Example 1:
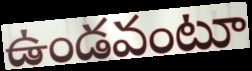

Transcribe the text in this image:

ఉండవంటూ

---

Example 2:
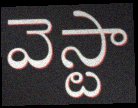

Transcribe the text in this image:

వెస్టా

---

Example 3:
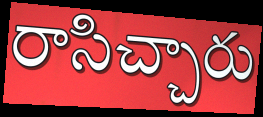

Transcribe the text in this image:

రాసిచ్చారు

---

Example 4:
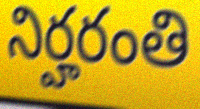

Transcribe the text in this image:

నిర్హరంతి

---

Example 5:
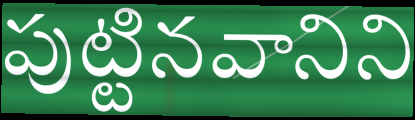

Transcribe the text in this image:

పుట్టినవానిని